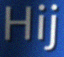
Hij